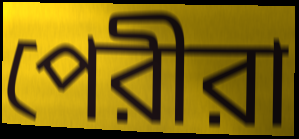
পেরীরা